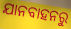
ଯାନବାହନରୁ